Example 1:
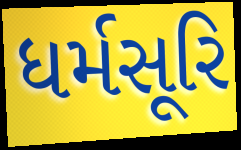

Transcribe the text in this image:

ધર્મસૂરિ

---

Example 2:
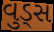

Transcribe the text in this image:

વુડ્સ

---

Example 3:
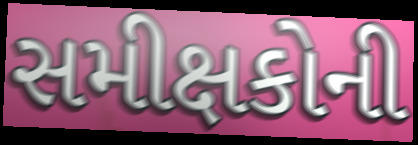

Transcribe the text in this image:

સમીક્ષકોની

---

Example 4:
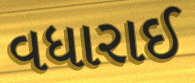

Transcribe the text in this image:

વધારાઈ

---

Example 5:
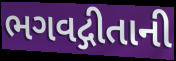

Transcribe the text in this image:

ભગવદ્ગીતાની